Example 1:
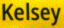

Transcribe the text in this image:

Kelsey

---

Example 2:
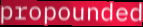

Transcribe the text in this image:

propounded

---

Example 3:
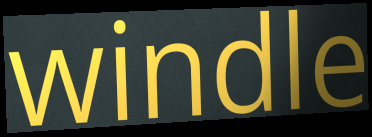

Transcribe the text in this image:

windle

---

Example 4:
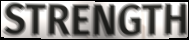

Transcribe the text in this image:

STRENGTH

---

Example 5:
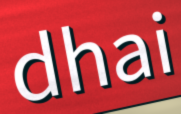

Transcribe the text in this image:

dhai